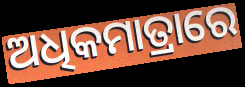
ଅଧିକମାତ୍ରାରେ